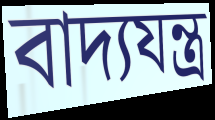
বাদ্যযন্ত্র